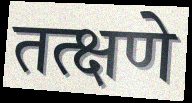
तत्क्षणे